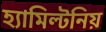
হ্যামিল্টনিয়